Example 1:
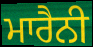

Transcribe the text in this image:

ਮਾਰੈਨੀ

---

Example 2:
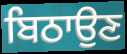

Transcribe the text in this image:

ਬਿਠਾਉਣ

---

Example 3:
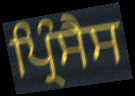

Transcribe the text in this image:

ਪ੍ਰਿੰਸੈਸ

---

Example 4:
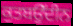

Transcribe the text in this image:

ਕੁਤਬਉੱਦੀਨ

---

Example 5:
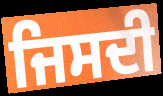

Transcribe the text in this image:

ਜਿਸਦੀ